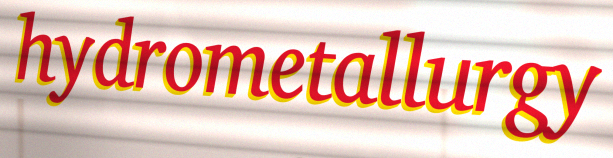
hydrometallurgy